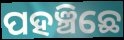
ପହଞ୍ଚିଛେ